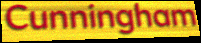
Cunningham